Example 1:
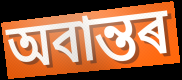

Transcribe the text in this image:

অবান্তৰ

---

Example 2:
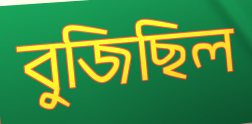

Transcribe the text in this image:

বুজিছিল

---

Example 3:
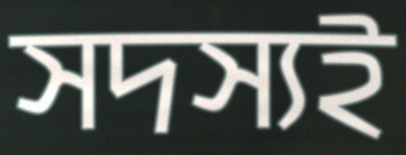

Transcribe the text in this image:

সদস্যই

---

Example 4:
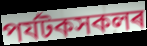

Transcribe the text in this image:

পৰ্যটকসকলৰ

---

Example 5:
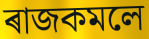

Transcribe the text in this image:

ৰাজকমলে